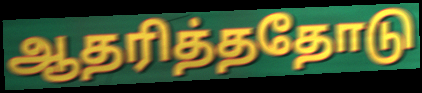
ஆதரித்ததோடு